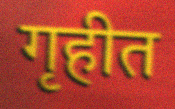
गृहीत